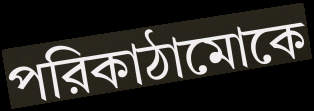
পরিকাঠামোকে